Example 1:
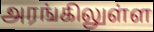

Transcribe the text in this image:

அரங்கிலுள்ள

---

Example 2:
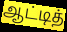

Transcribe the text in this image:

ஆட்டித்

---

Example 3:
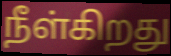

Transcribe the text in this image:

நீள்கிறது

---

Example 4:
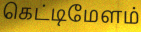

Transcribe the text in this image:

கெட்டிமேளம்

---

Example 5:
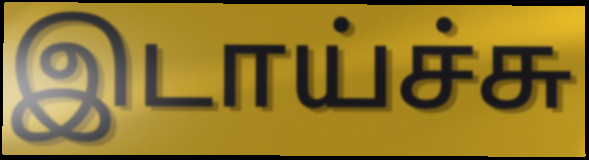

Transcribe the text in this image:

இடாய்ச்சு